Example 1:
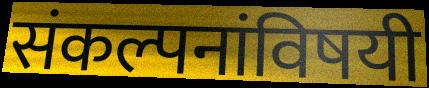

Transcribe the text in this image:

संकल्पनांविषयी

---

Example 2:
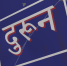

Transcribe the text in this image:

दुरून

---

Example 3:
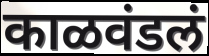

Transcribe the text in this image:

काळवंडलं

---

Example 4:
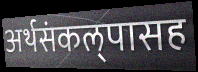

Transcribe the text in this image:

अर्थसंकल्पासह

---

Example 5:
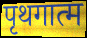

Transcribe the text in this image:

पृथगात्म